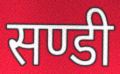
सण्डी